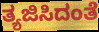
ತ್ಯಜಿಸಿದಂತೆ